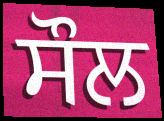
ਸੌਲ